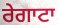
ਰੇਗਾਟਾ